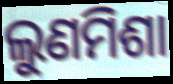
ଲୁଣମିଶା